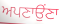
ਅਪਣਾਉਂਣਾ